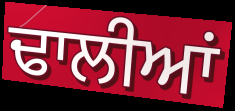
ਢਾਲੀਆਂ